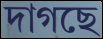
দাগছে